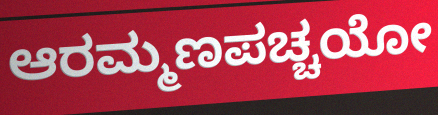
ಆರಮ್ಮಣಪಚ್ಚಯೋ